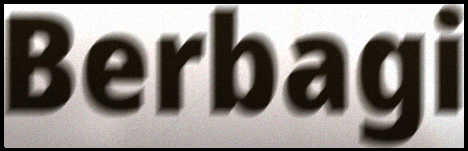
Berbagi